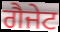
ਗੈਜੇਟ